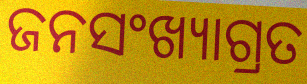
ଜନସଂଖ୍ୟାଗ୍ରତ